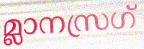
മ്ലാനസ്രഗ്